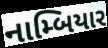
નામ્બિયાર